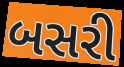
બસરી